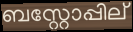
ബസ്റ്റോപ്പില്